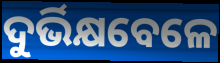
ଦୁର୍ଭିକ୍ଷବେଳେ